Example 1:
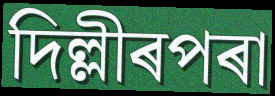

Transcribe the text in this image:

দিল্লীৰপৰা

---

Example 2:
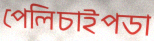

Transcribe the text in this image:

পেলিচাইপডা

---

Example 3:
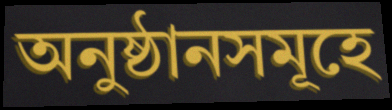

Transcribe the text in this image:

অনুষ্ঠানসমূহে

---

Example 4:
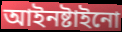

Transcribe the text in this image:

আইনষ্টাইনো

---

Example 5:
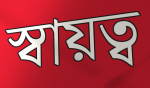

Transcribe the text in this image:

স্বায়ত্ব